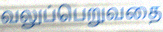
வலுப்பெறுவதை